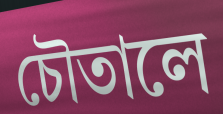
চৌতালে